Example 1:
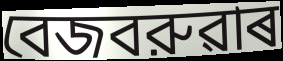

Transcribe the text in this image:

বেজবৰুৱাৰ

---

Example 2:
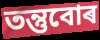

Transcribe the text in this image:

তন্তুবোৰ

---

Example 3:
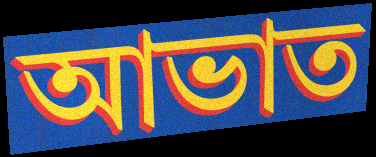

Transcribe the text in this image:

আভাত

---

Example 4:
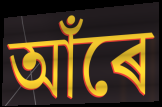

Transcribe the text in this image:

আঁৰে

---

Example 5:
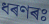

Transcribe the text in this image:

ধৰণৰঃ